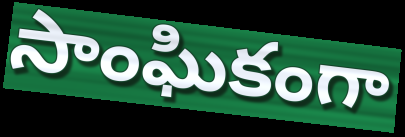
సాంఘికంగా